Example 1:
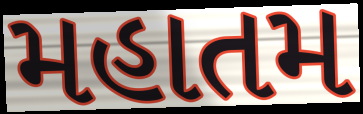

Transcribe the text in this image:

મહાતમ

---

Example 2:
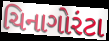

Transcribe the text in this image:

ચિનાગોરંટા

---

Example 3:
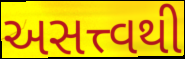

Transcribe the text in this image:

અસત્ત્વથી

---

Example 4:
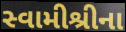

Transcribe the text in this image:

સ્વામીશ્રીના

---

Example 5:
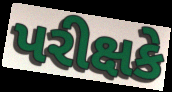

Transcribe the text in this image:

પરીક્ષકે